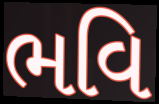
ભવિ